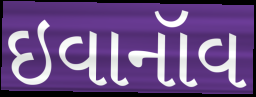
ઇવાનૉવ